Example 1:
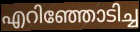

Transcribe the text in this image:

എറിഞ്ഞോടിച്ച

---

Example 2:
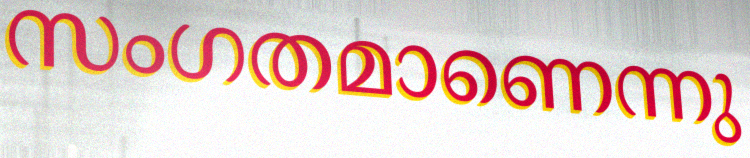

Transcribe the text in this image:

സംഗതമാണെന്നു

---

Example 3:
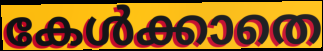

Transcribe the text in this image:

കേൾക്കാതെ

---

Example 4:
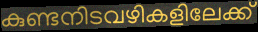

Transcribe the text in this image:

കുണ്ടനിടവഴികളിലേക്ക്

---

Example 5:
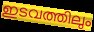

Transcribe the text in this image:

ഇടവത്തിലും